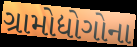
ગ્રામોદ્યોગોના